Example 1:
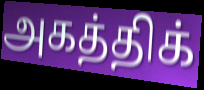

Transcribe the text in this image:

அகத்திக்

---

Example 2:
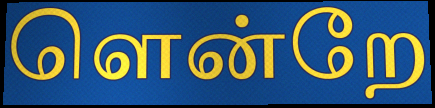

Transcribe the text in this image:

ளென்றே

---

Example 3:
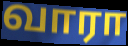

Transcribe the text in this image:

வாரா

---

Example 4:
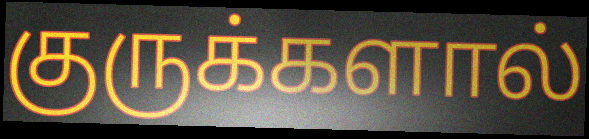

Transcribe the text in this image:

குருக்களால்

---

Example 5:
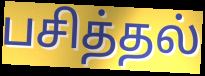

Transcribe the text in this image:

பசித்தல்